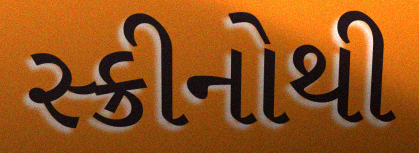
સ્ક્રીનોથી